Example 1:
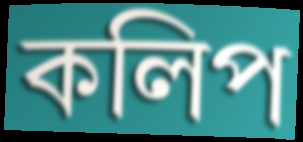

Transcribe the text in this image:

কলিপ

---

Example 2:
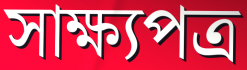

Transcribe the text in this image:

সাক্ষ্যপত্র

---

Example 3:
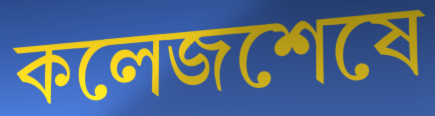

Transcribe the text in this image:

কলেজশেষে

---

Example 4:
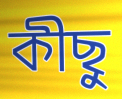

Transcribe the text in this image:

কীছু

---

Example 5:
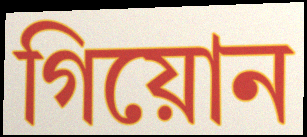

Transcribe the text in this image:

গিয়োন